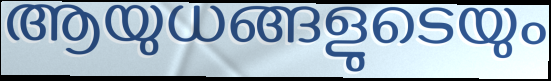
ആയുധങ്ങളുടെയും